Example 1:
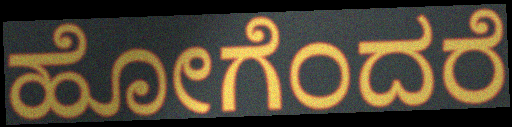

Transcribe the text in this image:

ಹೋಗೆಂದರೆ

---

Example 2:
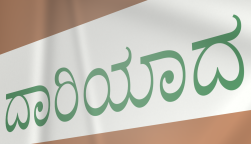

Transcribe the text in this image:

ದಾರಿಯಾದ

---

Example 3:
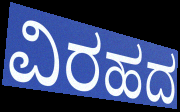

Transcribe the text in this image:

ವಿರಹದ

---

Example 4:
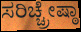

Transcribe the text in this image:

ಸರಿಚ್ಚ್ರೇಷ್ಠಾ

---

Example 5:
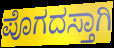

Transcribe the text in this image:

ಪೊಗದಸ್ತಾಗಿ